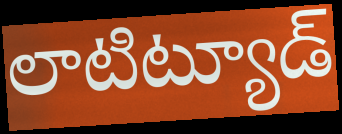
లాటిట్యూడ్